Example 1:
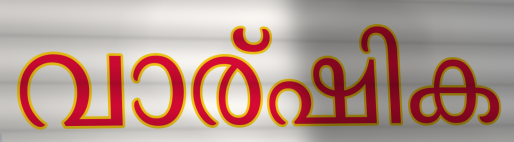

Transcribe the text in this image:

വാര്ഷിക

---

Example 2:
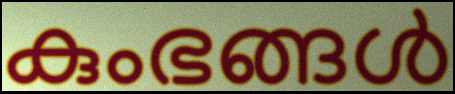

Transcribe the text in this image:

കുംഭങ്ങൾ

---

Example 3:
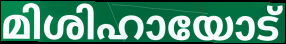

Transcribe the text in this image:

മിശിഹായോട്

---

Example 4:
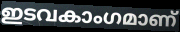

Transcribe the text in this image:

ഇടവകാംഗമാണ്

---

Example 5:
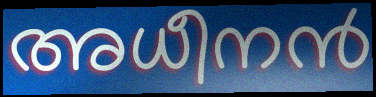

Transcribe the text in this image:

അധീനൻ